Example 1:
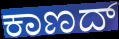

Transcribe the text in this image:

ಕಾಣದ್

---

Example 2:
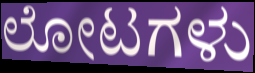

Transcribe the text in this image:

ಲೋಟಗಳು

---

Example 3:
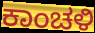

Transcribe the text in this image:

ಕಾಂಚಳಿ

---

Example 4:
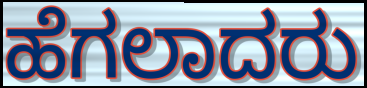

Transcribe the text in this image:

ಹೆಗಲಾದರು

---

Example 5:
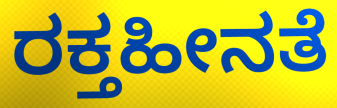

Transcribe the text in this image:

ರಕ್ತಹೀನತೆ